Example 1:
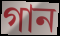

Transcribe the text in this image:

গান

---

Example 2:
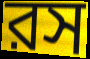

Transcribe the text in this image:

রস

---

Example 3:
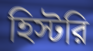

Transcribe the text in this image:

হিস্টরি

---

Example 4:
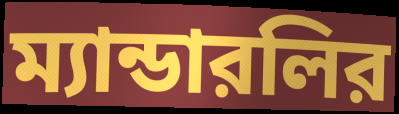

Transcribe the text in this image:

ম্যান্ডারলির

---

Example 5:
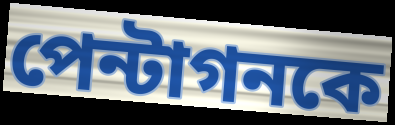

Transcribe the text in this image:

পেন্টাগনকে